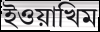
ইওয়াখিম